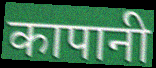
कापानी